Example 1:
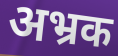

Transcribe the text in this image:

अभ्रक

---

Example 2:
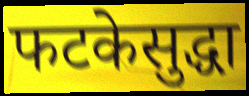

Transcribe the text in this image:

फटकेसुद्धा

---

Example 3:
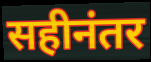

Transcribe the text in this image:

सहीनंतर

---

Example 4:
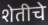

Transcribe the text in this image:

शेतीचे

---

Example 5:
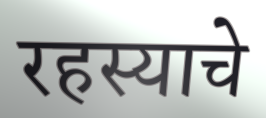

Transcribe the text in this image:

रहस्याचे